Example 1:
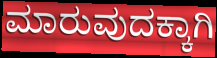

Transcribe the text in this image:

ಮಾರುವುದಕ್ಕಾಗಿ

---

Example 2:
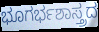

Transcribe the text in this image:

ಭೂಗರ್ಭಶಾಸ್ತ್ರದ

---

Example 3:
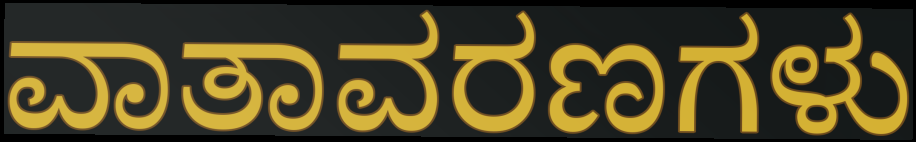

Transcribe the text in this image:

ವಾತಾವರಣಗಳು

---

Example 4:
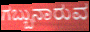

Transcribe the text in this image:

ಗಬ್ಬುನಾರುವ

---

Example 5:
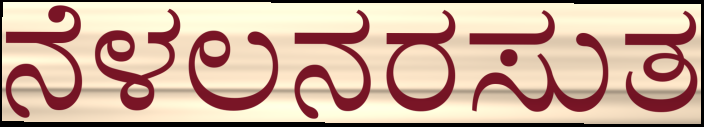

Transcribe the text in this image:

ನೆಳಲನರಸುತ